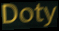
Doty